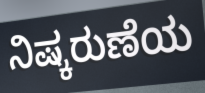
ನಿಷ್ಕರುಣೆಯ